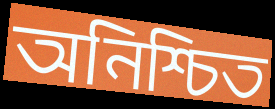
অনিশ্চিত